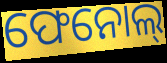
ଫେନୋଲ୍